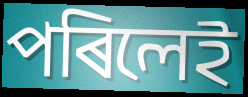
পৰিলেই